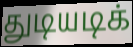
துடியடிக்